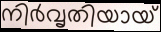
നിർവൃതിയായ്